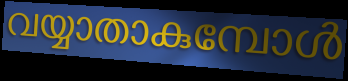
വയ്യാതാകുമ്പോൾ